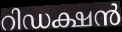
റിഡക്ഷൻ